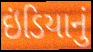
ઇંડિયાનું